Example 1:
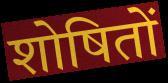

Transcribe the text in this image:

शोषितों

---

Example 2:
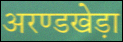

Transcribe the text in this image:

अरण्डखेड़ा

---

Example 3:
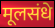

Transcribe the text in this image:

मूलसंधे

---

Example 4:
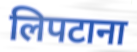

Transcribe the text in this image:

लिपटाना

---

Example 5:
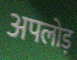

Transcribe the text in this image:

अपलोड़